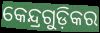
କେନ୍ଦ୍ରଗୁଡ଼ିକର